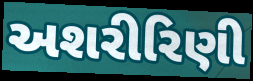
અશરીરિણી